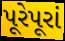
પૂરેપૂરાં